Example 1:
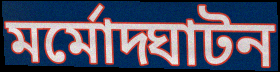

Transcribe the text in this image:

মর্মোদ্ঘাটন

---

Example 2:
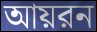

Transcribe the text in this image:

আয়রন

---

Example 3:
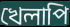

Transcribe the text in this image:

খেলাপি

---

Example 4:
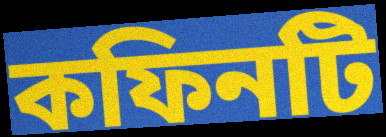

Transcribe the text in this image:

কফিনটি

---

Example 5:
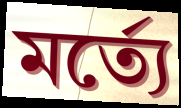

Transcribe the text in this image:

মর্ত্যে